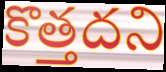
కొత్తదని